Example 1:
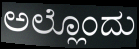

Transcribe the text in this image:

ಅಲ್ಲೊಂದು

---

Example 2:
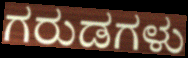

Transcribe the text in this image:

ಗರುಡಗಳು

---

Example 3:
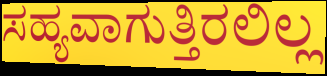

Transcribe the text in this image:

ಸಹ್ಯವಾಗುತ್ತಿರಲಿಲ್ಲ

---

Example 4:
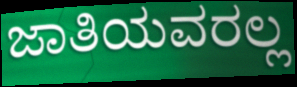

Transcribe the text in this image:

ಜಾತಿಯವರಲ್ಲ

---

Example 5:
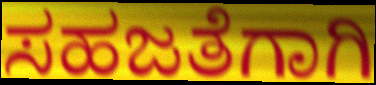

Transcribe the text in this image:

ಸಹಜತೆಗಾಗಿ